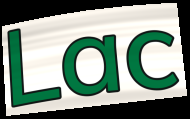
Lac